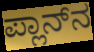
ಪ್ಲಾನ್‌ನ